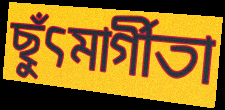
ছুঁৎমার্গীতা